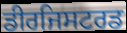
ਡੀਰਜਿਸਟਰਡ